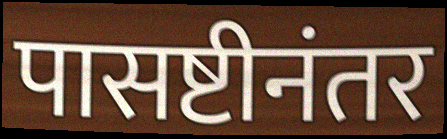
पासष्टीनंतर